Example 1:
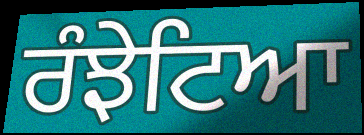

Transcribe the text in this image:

ਰੰਝੇਟਿਆ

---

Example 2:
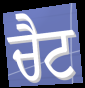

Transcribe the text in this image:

ਚੈਟ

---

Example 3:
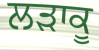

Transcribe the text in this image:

ਲੜਾਕੂ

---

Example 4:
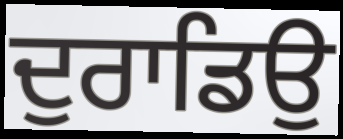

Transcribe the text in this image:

ਦੁਰਾਡਿਉ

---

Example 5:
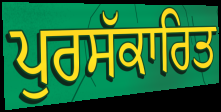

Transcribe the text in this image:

ਪੁਰਸੱਕਾਰਿਤ